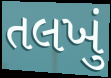
તલખું